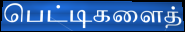
பெட்டிகளைத்